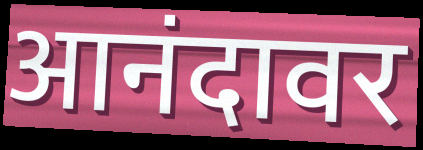
आनंदावर